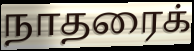
நாதரைக்